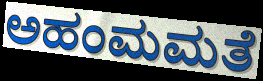
ಅಹಂಮಮತೆ